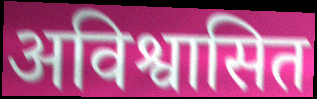
अविश्वासित